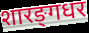
शारङ्गधर